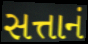
સત્તાનં